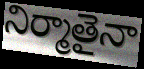
నిర్మాతైనా